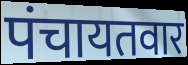
पंचायतवार